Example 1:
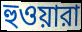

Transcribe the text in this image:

হুওয়ারা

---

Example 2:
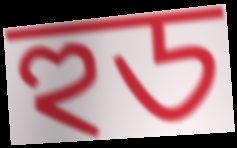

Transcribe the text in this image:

হুড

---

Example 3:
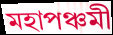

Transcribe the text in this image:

মহাপঞ্চমী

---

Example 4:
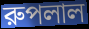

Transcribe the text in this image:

রুপলাল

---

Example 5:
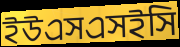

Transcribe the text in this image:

ইউএসএসইসি